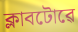
ক্লাবটোৱে